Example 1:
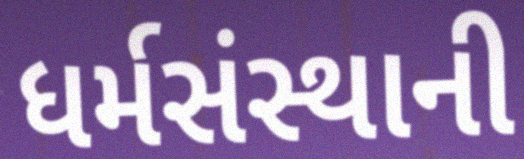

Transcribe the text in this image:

ધર્મસંસ્થાની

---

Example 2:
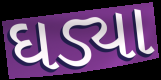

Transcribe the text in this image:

ઘડ્યા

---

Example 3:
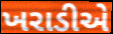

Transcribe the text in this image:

ખરાડીએ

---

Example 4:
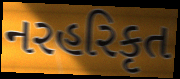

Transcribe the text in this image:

નરહરિકૃત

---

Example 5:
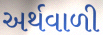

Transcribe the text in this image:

અર્થવાળી